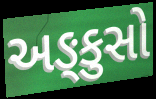
અઙ્કુસો